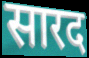
सारद